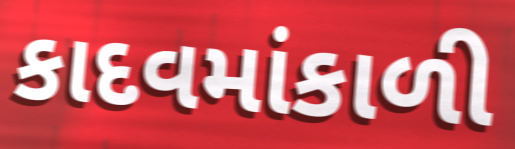
કાદવમાંકાળી